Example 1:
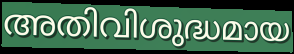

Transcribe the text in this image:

അതിവിശുദ്ധമായ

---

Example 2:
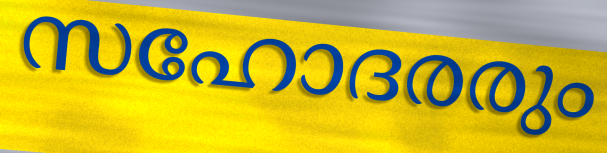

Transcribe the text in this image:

സഹോദരരും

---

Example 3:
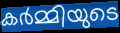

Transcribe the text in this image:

കർമ്മിയുടെ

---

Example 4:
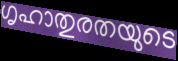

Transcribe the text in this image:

ഗൃഹാതുരതയുടെ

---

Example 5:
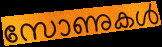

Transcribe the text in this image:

സോണുകൾ